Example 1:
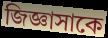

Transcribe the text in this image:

জিজ্ঞাসাকে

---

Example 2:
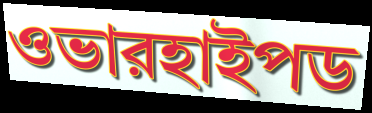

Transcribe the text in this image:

ওভারহাইপড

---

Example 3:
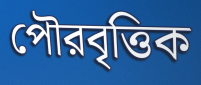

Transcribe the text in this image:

পৌরবৃত্তিক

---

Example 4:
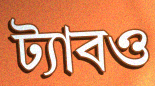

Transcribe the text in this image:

ট্যাবও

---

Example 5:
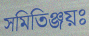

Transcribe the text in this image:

সমিতিঞ্জয়ঃ